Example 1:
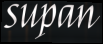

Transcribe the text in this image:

supan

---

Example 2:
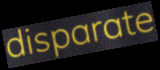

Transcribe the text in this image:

disparate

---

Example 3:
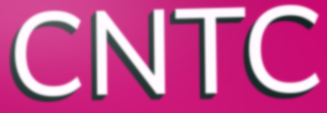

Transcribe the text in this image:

CNTC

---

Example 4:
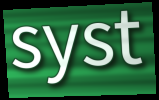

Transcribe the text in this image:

syst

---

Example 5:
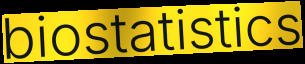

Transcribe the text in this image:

biostatistics